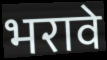
भरावे